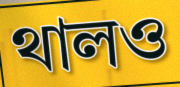
থালও